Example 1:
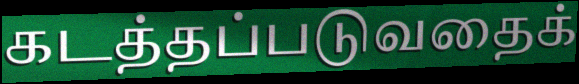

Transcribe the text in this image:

கடத்தப்படுவதைக்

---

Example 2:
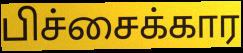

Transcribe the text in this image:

பிச்சைக்கார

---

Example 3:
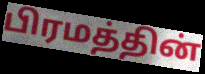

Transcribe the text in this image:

பிரமத்தின்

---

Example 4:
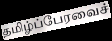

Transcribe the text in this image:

தமிழ்ப்பேரவைச்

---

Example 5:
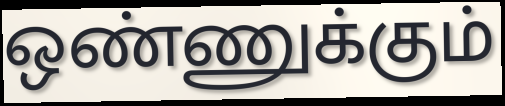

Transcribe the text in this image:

ஒண்ணுக்கும்